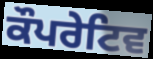
ਕੌਪਰੇਟਿਵ